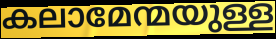
കലാമേന്മയുള്ള